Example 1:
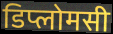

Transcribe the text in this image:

डिप्लोमसी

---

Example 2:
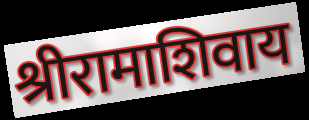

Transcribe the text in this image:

श्रीरामाशिवाय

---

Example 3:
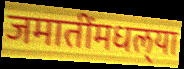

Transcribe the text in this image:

जमातींमधल्या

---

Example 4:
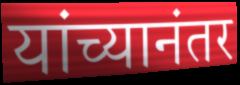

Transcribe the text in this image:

यांच्यानंतर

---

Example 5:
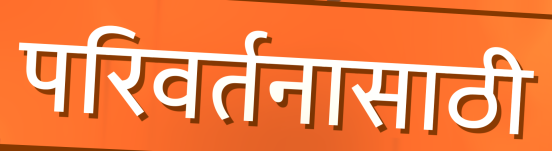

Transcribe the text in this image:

परिवर्तनासाठी